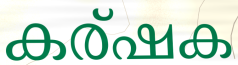
കര്ഷക